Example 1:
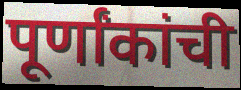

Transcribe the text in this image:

पूर्णांकांची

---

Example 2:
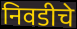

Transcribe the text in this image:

निवडीचे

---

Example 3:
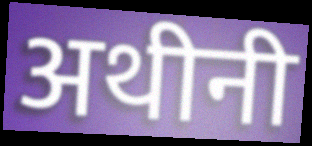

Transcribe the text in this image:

अथीनी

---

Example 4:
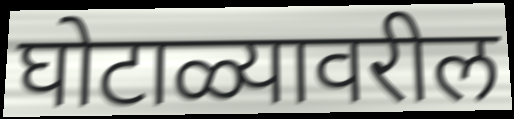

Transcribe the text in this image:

घोटाळ्यावरील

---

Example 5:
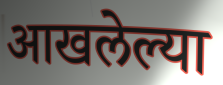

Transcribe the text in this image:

आखलेल्या